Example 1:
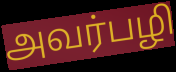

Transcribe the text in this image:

அவர்பழி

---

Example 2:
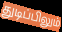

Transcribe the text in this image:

துடிப்பிலும்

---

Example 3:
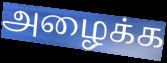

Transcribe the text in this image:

அழைக்க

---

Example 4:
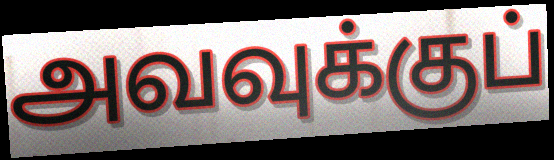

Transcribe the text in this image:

அவவுக்குப்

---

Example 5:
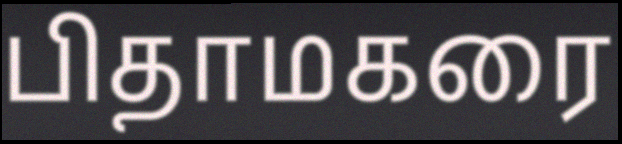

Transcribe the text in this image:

பிதாமகரை